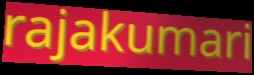
rajakumari